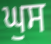
ਘੁਸ